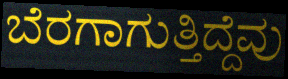
ಬೆರಗಾಗುತ್ತಿದ್ದೆವು